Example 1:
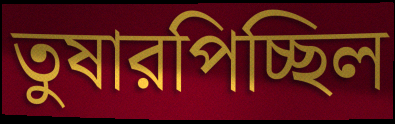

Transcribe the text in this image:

তুষারপিচ্ছিল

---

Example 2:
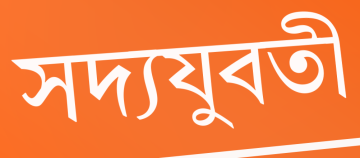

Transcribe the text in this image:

সদ্যযুবতী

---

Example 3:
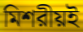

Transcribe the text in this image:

মিশরীয়ই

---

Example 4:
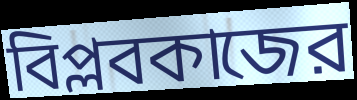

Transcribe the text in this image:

বিপ্লবকাজের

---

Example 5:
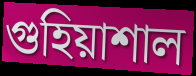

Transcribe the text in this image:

গুহিয়াশাল